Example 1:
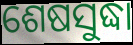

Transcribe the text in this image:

ଶେଷସୁଦ୍ଧା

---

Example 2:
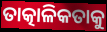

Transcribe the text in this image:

ତାତ୍କାଳିକତାକୁ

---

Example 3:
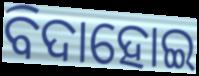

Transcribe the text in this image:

ବିଦାହୋଇ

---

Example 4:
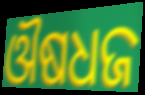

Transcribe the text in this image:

ଔଷଧଜ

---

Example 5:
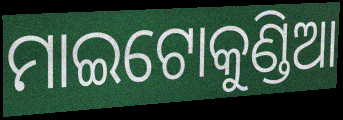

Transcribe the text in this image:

ମାଇଟୋକୁଣ୍ଡିଆ